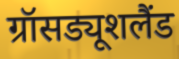
ग्रॉसड्यूशलैंड